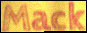
Mack